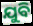
ଯୁବି